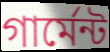
গার্মেন্ট